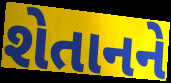
શેતાનને